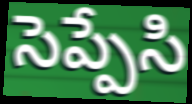
సెప్పేసి